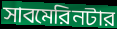
সাবমেরিনটার